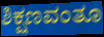
ಶಿಕ್ಷಣವಂತೂ